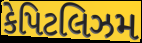
કેપિટલિઝમ